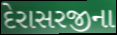
દેરાસરજીના